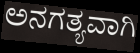
ಅನಗತ್ಯವಾಗಿ